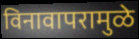
विनावापरामुळे